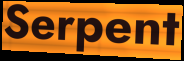
Serpent